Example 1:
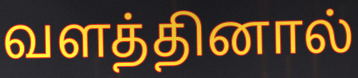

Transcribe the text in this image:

வளத்தினால்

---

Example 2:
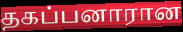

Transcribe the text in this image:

தகப்பனாரான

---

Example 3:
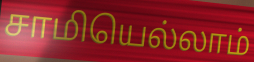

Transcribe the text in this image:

சாமியெல்லாம்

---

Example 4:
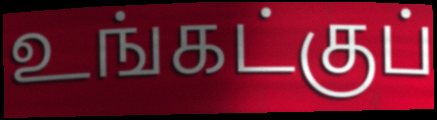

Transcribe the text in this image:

உங்கட்குப்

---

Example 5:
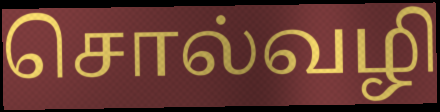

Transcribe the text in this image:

சொல்வழி